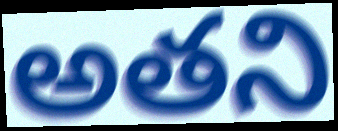
అతని